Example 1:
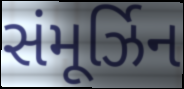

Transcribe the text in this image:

સંમૂર્ઝિન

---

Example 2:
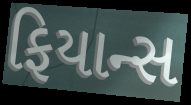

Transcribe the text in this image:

ફિયાન્સ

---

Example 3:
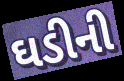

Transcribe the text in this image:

ઘડીની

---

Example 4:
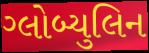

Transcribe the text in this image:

ગ્લોબ્યુલિન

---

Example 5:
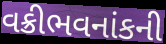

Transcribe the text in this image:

વક્રીભવનાંકની